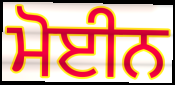
ਮੋਈਨ